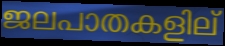
ജലപാതകളില്